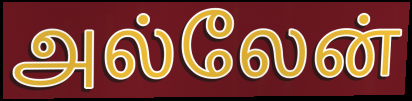
அல்லேன்